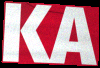
KA